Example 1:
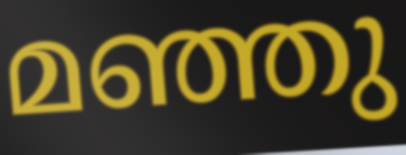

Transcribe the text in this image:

മഞ്ഞു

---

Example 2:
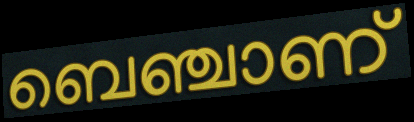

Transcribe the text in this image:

ബെഞ്ചാണ്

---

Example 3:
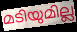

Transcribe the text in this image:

മടിയുമില്ല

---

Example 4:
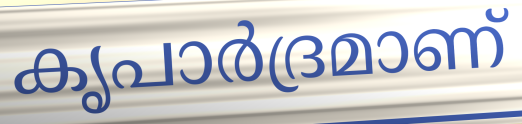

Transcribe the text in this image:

കൃപാർദ്രമാണ്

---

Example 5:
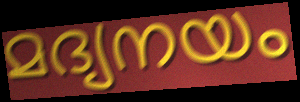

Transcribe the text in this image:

മദ്യനയം